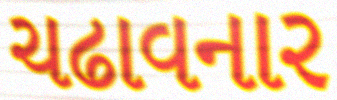
ચઢાવનાર